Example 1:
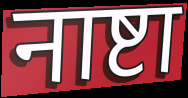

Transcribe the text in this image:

नाष्टा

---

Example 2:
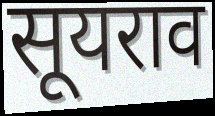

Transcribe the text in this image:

सूयराव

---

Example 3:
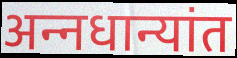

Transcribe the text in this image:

अन्नधान्यांत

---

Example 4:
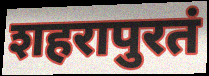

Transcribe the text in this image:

शहरापुरतं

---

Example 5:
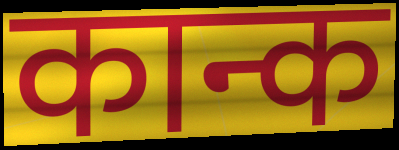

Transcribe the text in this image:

कान्क